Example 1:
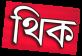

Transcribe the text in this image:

থিক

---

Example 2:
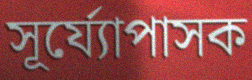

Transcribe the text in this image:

সূৰ্য্যোপাসক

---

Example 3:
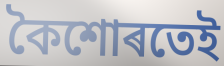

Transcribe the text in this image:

কৈশোৰতেই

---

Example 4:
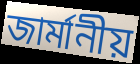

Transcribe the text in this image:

জাৰ্মানীয়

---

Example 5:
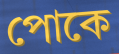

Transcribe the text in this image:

পোকে